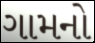
ગામનો